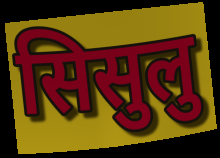
सिसुलु